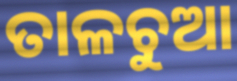
ତାଳଚୁଆ